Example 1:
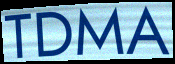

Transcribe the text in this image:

TDMA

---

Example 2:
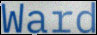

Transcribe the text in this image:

Ward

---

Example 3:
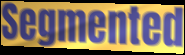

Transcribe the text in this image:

Segmented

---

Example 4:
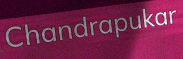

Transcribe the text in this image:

Chandrapukar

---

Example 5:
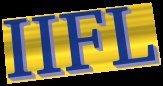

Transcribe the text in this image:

IIFL